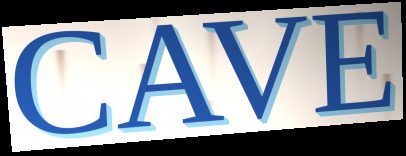
CAVE